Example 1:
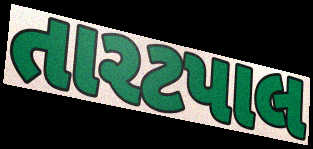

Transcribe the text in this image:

તારટપાલ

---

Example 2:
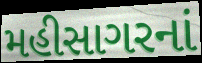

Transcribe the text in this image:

મહીસાગરનાં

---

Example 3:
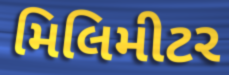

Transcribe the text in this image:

મિલિમીટર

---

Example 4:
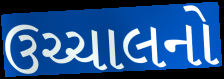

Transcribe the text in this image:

ઉચ્ચાલનો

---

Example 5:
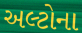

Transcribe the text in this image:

અલ્ટોના